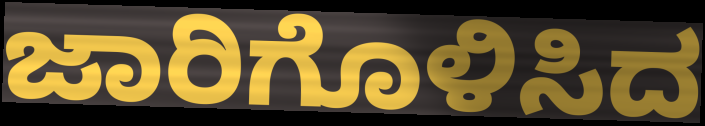
ಜಾರಿಗೊಳಿಸಿದ